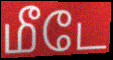
மீடே